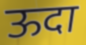
ऊदा